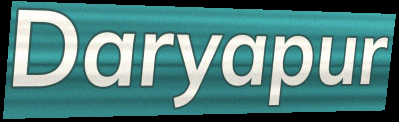
Daryapur